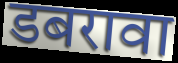
डबरावा